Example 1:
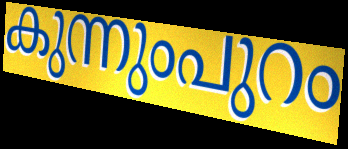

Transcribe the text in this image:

കുന്നുംപുറം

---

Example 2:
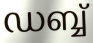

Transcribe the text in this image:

ഡബ്ബ്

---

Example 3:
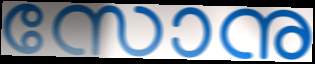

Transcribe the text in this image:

സോനു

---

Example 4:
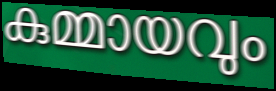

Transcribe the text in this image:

കുമ്മായവും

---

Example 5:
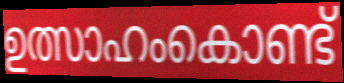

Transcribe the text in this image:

ഉത്സാഹംകൊണ്ട്